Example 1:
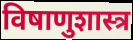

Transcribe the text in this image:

विषाणुशास्त्र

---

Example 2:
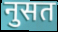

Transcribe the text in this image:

नुसत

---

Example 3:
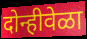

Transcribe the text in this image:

दोन्हीवेळा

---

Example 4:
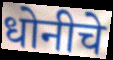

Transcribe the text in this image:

धोनीचे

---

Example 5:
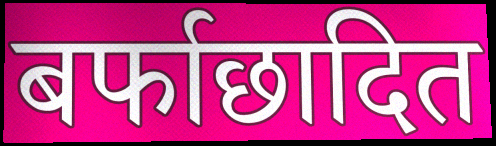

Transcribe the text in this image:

बर्फाछादित